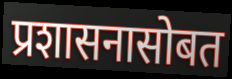
प्रशासनासोबत